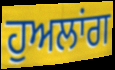
ਹੁਅਲਾਂਗ